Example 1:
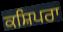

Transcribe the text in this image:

ਕਸ਼ਿਪਰਾ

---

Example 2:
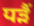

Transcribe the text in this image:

ਧੜੈਂ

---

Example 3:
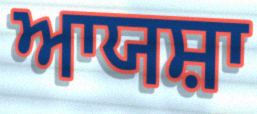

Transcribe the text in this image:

ਆਯਸ਼ਾ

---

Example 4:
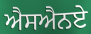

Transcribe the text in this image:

ਐਸਐਨਏ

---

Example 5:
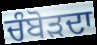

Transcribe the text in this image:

ਚੰਬੋੜਦਾ